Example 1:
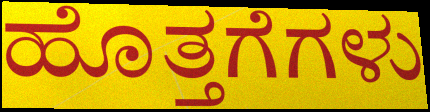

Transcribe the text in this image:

ಹೊತ್ತಗೆಗಳು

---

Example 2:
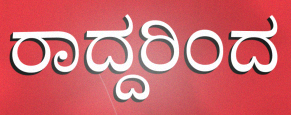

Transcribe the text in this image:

ರಾದ್ದರಿಂದ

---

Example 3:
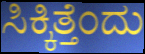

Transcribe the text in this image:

ಸಿಕ್ಕಿತ್ತೆಂದು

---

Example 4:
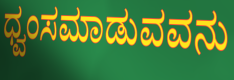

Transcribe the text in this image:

ಧ್ವಂಸಮಾಡುವವನು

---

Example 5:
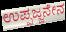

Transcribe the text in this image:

ಉಪ್ಪಜ್ಜನೇನ